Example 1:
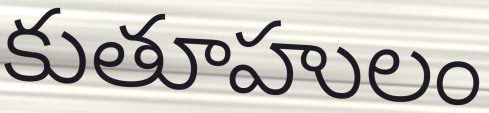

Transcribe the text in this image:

కుతూహులం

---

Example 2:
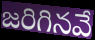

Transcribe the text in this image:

జరిగినవే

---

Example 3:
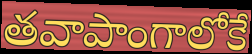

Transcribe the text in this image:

తవాపాంగాలోకే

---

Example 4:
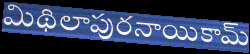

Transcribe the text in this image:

మిథిలాపురనాయికామ్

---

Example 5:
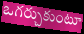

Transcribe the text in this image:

ఒగర్చుకుంటూ